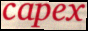
capex